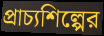
প্রাচ্যশিল্পের